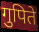
गुपिते